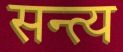
सन्त्य